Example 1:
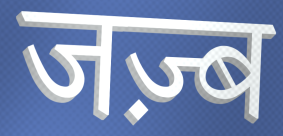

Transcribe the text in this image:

जज़्ब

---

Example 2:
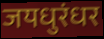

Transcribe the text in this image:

जयधुरंधर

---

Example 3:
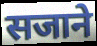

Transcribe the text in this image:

सजाने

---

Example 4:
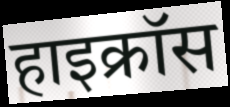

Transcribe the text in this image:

हाइक्रॉस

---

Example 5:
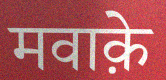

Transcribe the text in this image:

मवाक़े